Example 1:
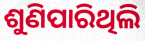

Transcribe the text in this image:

ଶୁଣିପାରିଥିଲି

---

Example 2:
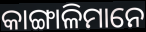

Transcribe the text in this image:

କାଙ୍ଗାଳିମାନେ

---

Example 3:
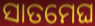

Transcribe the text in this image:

ସାତମେଘ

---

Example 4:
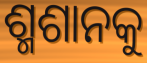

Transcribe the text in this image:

ଶ୍ମଶାନକୁ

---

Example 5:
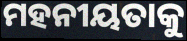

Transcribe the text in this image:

ମହନୀୟତାକୁ